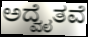
ಅದ್ವೈತವೆ